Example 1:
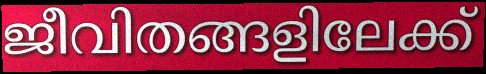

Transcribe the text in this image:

ജീവിതങ്ങളിലേക്ക്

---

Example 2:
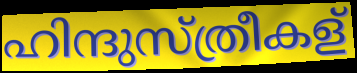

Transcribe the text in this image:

ഹിന്ദുസ്ത്രീകള്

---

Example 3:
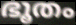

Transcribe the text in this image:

ഭൂതം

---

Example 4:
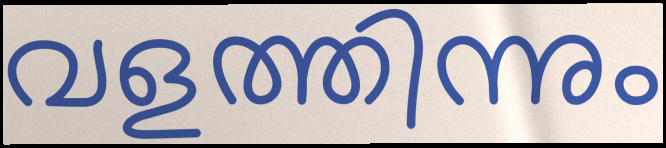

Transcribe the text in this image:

വളത്തിന്നും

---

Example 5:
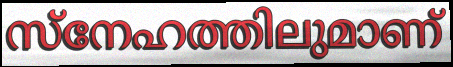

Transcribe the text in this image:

സ്നേഹത്തിലുമാണ്